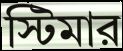
স্টিমার